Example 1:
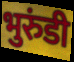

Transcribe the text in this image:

भुरुंडी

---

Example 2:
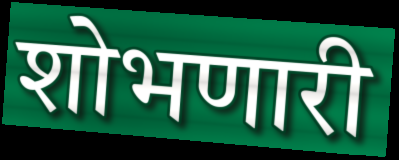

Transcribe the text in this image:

शोभणारी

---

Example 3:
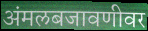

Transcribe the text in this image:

अंमलबजावणीवर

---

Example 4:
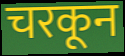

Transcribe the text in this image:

चरकून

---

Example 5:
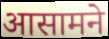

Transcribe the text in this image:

आसामने